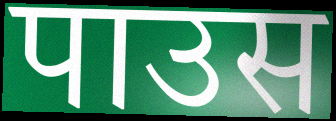
पाउस